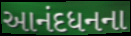
આનંદધનના